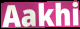
Aakhi